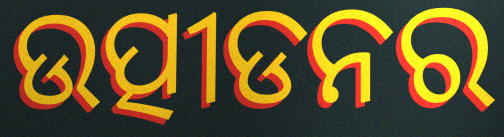
ଉତ୍ପୀଡନର